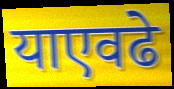
याएवढे